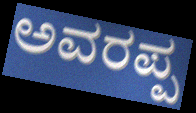
ಅವರಪ್ಪ